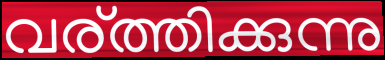
വര്ത്തിക്കുന്നു